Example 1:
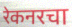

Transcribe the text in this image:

रेकनरचा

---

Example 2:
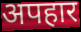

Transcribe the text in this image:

अपहार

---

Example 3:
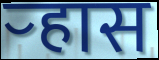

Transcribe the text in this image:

ऱ्हास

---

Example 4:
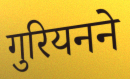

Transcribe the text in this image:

गुरियनने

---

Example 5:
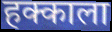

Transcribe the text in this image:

हक्काला